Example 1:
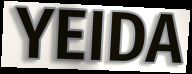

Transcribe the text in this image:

YEIDA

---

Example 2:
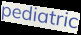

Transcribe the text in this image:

pediatric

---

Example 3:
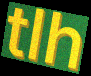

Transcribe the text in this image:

tlh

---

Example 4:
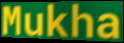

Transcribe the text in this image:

Mukha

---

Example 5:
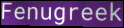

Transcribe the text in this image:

Fenugreek